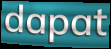
dapat